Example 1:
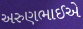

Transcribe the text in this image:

અરુણભાઈએ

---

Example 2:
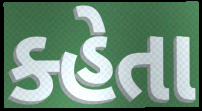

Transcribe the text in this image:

ક્હેતા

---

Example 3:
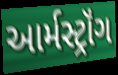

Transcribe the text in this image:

આર્મસ્ટ્રૉંગ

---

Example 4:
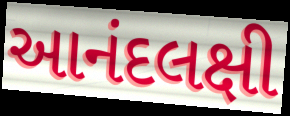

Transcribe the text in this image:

આનંદલક્ષી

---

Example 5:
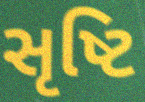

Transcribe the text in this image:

સૃષ્ટિ